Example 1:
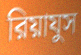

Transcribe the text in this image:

রিয়াযুস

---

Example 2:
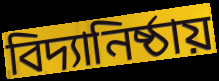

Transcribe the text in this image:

বিদ্যানিষ্ঠায়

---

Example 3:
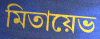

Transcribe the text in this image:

মিতায়েভ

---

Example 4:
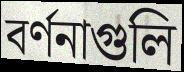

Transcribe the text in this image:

বর্ণনাগুলি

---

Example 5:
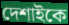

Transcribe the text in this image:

দেশাইকে